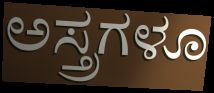
ಅಸ್ತ್ರಗಳೂ